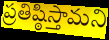
ప్రతిష్ఠిస్తామని